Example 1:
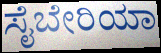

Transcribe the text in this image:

ಸೈಬೇರಿಯಾ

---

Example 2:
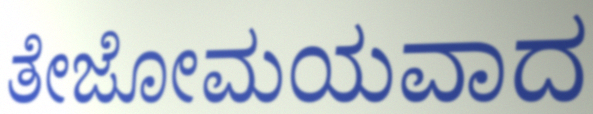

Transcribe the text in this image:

ತೇಜೋಮಯವಾದ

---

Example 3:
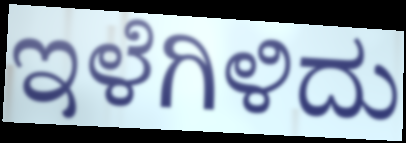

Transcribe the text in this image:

ಇಳೆಗಿಳಿದು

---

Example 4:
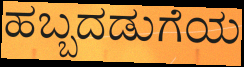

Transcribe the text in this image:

ಹಬ್ಬದಡುಗೆಯ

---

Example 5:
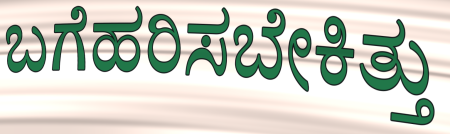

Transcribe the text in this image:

ಬಗೆಹರಿಸಬೇಕಿತ್ತು